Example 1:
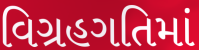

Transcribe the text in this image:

વિગ્રહગતિમાં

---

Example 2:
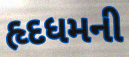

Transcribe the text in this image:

હૃદધમની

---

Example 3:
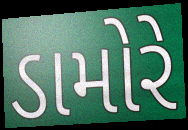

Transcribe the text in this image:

ડામોરે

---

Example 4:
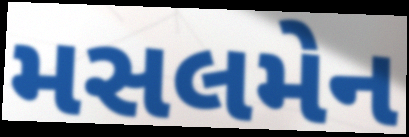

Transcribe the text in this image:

મસલમેન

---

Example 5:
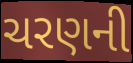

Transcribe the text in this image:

ચરણની